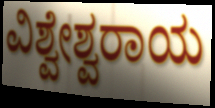
ವಿಶ್ವೇಶ್ವರಾಯ